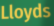
Lloyds